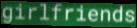
girlfriends